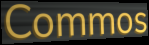
Commos